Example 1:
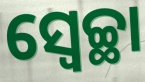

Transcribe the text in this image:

ସ୍ବେଚ୍ଛା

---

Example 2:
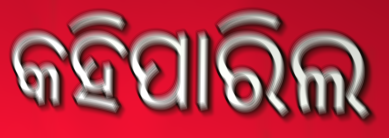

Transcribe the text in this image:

କହିପାରିଲ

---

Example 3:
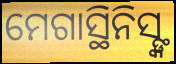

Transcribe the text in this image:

ମେଗାସ୍ଥିନିସ୍ଙ୍କ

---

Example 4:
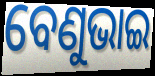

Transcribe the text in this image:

ବେଣୁଭାଇ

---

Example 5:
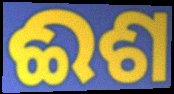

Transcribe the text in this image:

ଈଶ